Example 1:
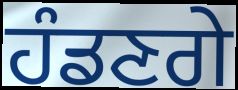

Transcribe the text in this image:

ਹੰਡਣਗੇ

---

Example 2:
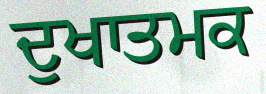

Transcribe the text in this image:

ਦੁਖਾਤਮਕ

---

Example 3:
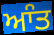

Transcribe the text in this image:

ਆੰਤ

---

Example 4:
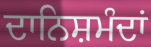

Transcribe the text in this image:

ਦਾਨਿਸ਼ਮੰਦਾਂ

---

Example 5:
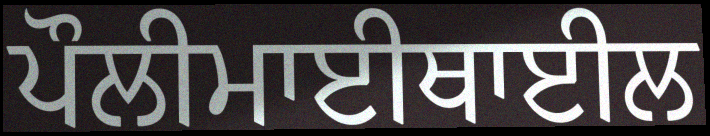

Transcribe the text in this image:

ਪੌਲੀਮਾਈਥਾਈਲ